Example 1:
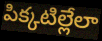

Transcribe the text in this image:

పిక్కటిల్లేలా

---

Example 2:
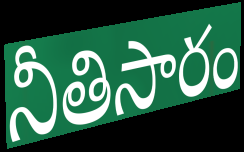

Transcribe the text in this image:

నీతిసారం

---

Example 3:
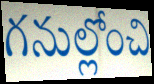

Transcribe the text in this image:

గనుల్లోంచి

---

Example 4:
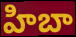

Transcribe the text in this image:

హిబా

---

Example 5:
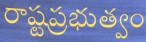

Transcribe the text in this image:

రాష్టప్రభుత్వం